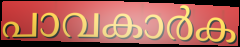
പാവകാർക